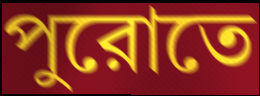
পুরোতে